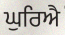
ਘੁਰਿਐ